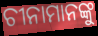
ଚୀନାମାନଙ୍କୁ